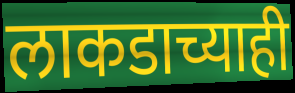
लाकडाच्याही